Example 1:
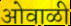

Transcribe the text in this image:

ओवाळी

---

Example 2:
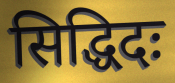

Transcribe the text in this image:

सिद्धिदः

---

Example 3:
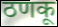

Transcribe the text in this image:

ठणकू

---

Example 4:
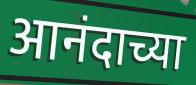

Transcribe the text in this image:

आनंदाच्या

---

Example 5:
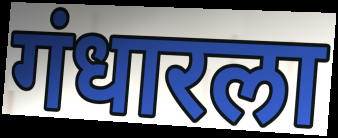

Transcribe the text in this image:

गंधारला